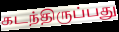
கடந்திருப்பது